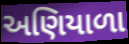
અણિયાળા